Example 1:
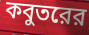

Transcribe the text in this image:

কবুতরের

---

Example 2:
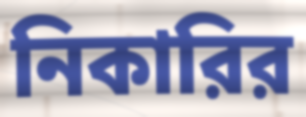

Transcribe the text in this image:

নিকারির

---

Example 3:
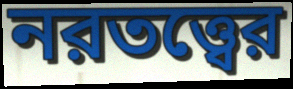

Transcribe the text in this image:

নরতত্ত্বের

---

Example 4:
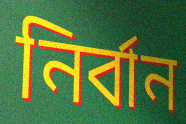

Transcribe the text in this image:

নির্বান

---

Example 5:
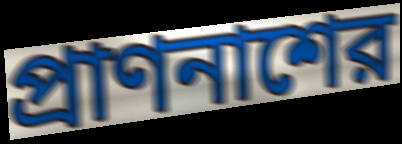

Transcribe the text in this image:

প্রাণনাশের